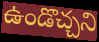
ఉండొచ్చని